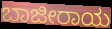
ಬಾಜೀರಾಯ